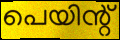
പെയിന്റ്